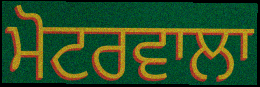
ਮੋਟਰਵਾਲਾ